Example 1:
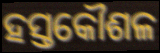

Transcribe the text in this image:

ହସ୍ତକୌଶଳ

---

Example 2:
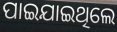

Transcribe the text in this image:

ପାଇଯାଇଥିଲେ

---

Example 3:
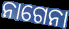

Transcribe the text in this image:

ନାଗେନା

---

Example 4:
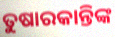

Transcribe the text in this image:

ତୁଷାରକାନ୍ତିଙ୍କ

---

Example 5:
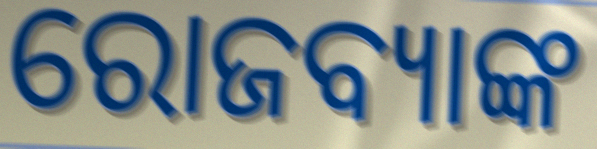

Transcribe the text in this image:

ରୋଜବ୍ୟାଙ୍କ